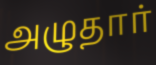
அழுதார்